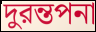
দুরন্তপনা